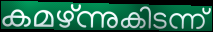
കമഴ്ന്നുകിടന്ന്